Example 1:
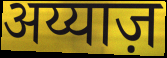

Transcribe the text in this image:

अय्याज़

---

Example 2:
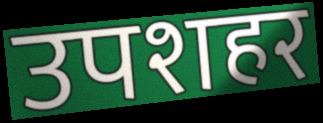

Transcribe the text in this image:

उपशहर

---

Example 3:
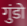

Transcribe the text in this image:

गुंडो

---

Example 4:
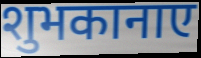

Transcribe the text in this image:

शुभकानाए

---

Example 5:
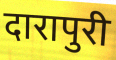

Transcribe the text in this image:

दारापुरी